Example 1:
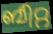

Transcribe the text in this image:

ബീറ്റ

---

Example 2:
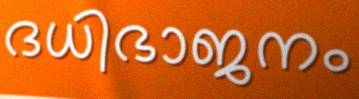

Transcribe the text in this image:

ദധിഭാജനം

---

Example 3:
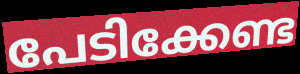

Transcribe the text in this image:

പേടിക്കേണ്ട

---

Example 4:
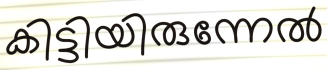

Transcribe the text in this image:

കിട്ടിയിരുന്നേൽ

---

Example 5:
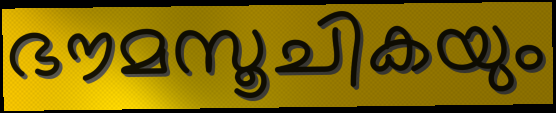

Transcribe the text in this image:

ഭൗമസൂചികയും